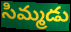
సిమ్మడు